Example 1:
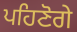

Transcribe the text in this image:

ਪਹਿਣੋਗੇ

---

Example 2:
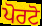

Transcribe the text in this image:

ਪੋਰਟੋ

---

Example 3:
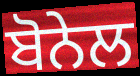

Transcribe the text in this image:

ਬੋਨੇਲ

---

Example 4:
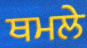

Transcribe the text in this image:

ਥਮਲੇ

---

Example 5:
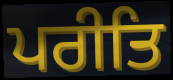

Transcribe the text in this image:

ਪਰੀਤਿ